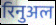
रिनुअल